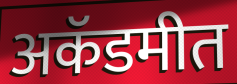
अकॅडमीत